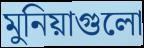
মুনিয়াগুলো